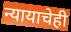
न्यायाचेही